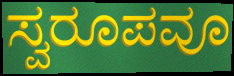
ಸ್ವರೂಪವೂ